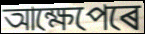
আক্ষেপেৰে